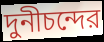
দুনীচন্দের